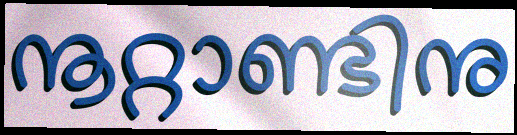
നൂറ്റാണ്ടിനു